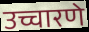
उच्चारणे